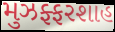
મુઝફ્ફરશાહ